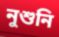
নুশুনি